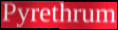
Pyrethrum